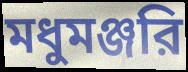
মধুমঞ্জরি